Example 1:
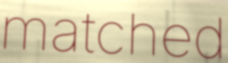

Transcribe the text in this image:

matched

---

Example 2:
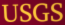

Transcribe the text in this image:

USGS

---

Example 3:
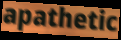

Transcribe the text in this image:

apathetic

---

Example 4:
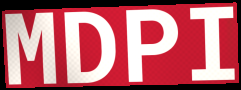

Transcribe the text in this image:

MDPI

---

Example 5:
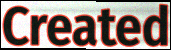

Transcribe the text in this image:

Created